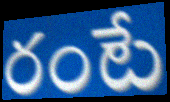
రంటే